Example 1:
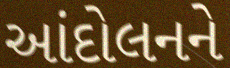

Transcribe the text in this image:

આંદોલનને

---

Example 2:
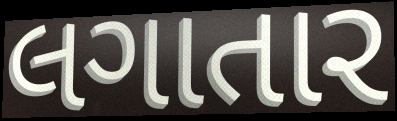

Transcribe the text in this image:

લગાતાર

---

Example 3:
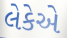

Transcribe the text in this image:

લેકેએ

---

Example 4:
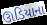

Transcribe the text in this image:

ઊડિયાના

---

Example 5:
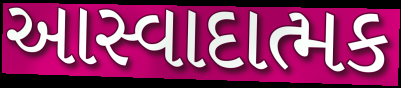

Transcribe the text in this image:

આસ્વાદાત્મક